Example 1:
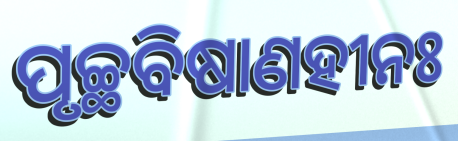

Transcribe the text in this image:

ପୃଚ୍ଛବିଷାଣହୀନଃ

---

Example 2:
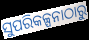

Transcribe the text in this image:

ସୁପରିକଳ୍ପନାଠାରୁ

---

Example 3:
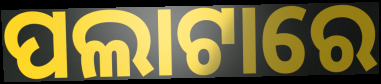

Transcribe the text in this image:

ପଲାଟାରେ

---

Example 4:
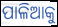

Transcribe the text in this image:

ପାଳିଆକୁ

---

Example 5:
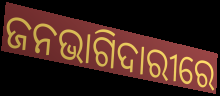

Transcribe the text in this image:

ଜନଭାଗିଦାରୀରେ